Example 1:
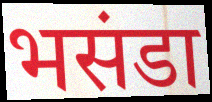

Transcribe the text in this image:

भसंडा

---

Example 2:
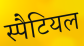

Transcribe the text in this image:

स्पैटियल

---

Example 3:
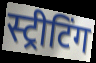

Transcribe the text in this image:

स्ट्रीटिंग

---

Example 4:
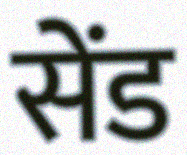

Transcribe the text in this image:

सेंड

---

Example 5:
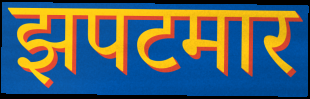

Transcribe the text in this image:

झपटमार